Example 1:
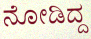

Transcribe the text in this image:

ನೋಡಿದ್ದ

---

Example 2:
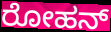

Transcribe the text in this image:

ರೋಹನ್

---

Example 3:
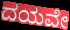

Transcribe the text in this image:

ದಯವೇ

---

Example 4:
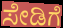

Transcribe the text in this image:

ಸೇಡಿಗೆ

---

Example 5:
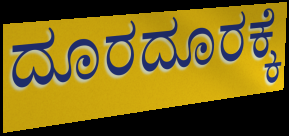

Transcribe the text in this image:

ದೂರದೂರಕ್ಕೆ